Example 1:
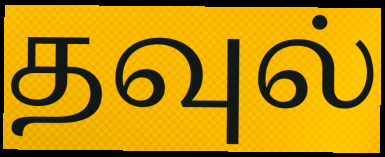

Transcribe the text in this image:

தவுல்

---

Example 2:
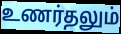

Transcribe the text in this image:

உணர்தலும்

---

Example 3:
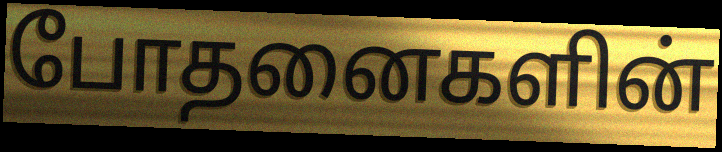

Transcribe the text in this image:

போதனைகளின்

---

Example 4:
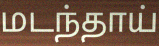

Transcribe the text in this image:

மடந்தாய்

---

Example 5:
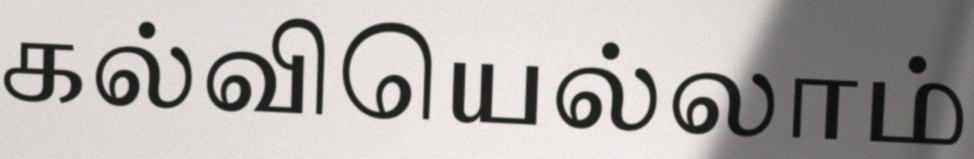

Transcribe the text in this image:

கல்வியெல்லாம்